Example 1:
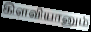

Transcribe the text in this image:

கிளவியானும்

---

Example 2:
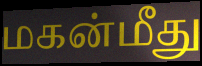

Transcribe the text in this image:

மகன்மீது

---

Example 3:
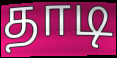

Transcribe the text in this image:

தாடி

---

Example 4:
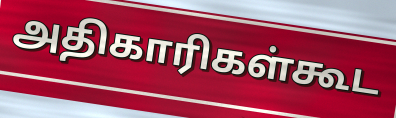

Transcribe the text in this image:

அதிகாரிகள்கூட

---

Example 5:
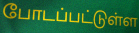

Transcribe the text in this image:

போடப்பட்டுள்ள